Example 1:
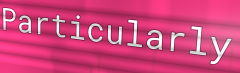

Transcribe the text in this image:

Particularly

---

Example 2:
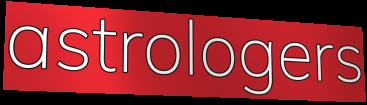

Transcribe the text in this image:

astrologers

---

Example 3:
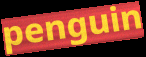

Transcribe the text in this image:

penguin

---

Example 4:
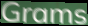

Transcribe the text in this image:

Grams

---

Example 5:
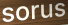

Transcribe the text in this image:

sorus